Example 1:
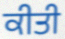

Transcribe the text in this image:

ਕੀਤੀ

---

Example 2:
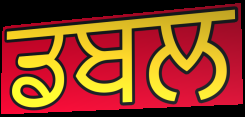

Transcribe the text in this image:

ਡਬਲ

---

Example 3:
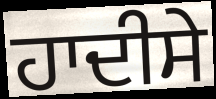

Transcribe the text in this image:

ਹਾਦੀਸੇ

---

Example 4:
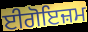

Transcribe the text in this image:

ਈਗੋਇਜ਼ਮ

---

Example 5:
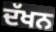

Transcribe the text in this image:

ਦੱਖਨ